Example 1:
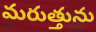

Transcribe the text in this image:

మరుత్తును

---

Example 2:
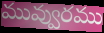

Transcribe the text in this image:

మువ్వురము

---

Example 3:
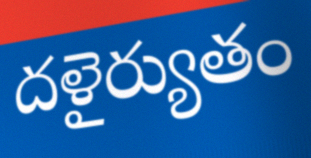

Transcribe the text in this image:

దళైర్యుతం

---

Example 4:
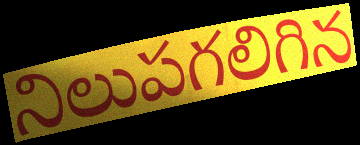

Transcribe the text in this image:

నిలుపగలిగిన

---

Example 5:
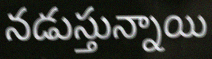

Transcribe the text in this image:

నడుస్తున్నాయి